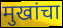
मुखांचा